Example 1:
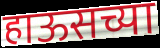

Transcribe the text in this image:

हाऊसच्या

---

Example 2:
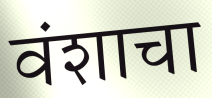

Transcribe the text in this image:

वंशाचा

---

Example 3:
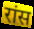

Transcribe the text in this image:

रांस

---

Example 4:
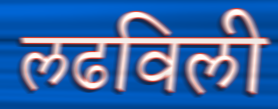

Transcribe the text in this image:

लढविली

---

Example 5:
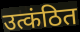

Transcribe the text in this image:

उत्कंठित